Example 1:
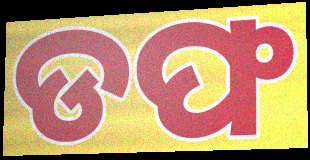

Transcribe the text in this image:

ଡଫ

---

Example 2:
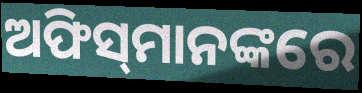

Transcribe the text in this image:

ଅଫିସ୍‌ମାନଙ୍କରେ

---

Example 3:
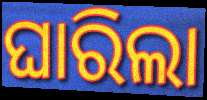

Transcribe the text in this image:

ଘାରିଲା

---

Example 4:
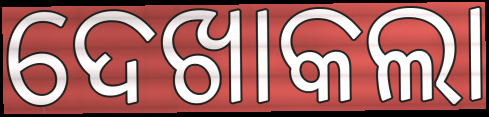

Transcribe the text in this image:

ଦେଖାକଲା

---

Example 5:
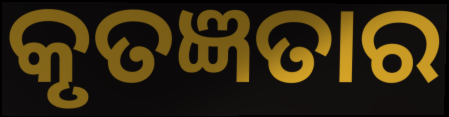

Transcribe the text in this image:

କୃତଜ୍ଞତାର